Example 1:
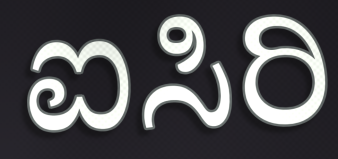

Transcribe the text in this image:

ಐಸಿರಿ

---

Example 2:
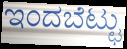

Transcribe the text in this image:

ಇಂದಬೆಟ್ಟು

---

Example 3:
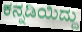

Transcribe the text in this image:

ಕನ್ನಡಿಯಿದ್ದು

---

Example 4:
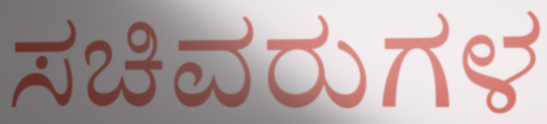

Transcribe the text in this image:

ಸಚಿವರುಗಳ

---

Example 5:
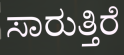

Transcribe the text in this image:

ಸಾರುತ್ತಿರೆ